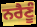
ਨਰੈਣੂੰ